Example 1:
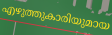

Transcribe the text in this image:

എഴുത്തുകാരിയുമായ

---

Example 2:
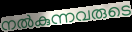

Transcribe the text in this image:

നൽകുന്നവരുടെ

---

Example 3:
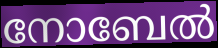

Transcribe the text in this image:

നോബേൽ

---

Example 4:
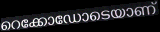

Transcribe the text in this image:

റെക്കോഡോടെയാണ്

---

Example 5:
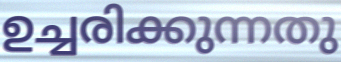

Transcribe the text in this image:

ഉച്ചരിക്കുന്നതു